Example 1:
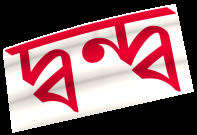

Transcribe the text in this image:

দ্বন্দ্ব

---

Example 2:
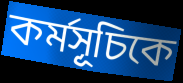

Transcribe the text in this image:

কর্মসূচিকে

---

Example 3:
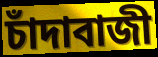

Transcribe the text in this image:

চাঁদাবাজী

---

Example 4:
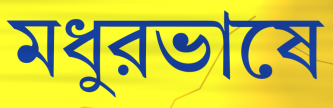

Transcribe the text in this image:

মধুরভাষে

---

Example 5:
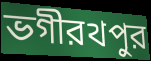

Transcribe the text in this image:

ভগীরথপুর